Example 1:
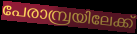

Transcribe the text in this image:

പേരാമ്പ്രയിലേക്ക്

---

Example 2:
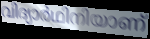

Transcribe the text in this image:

വിദ്യാർഥിനിയാണ്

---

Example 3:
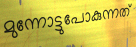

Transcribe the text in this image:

മുന്നോട്ടുപോകുന്നത്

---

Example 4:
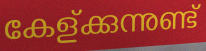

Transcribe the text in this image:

കേള്ക്കുന്നുണ്ട്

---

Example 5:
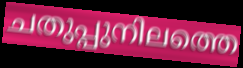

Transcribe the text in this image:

ചതുപ്പുനിലത്തെ